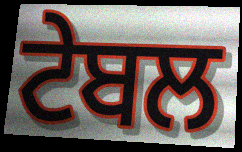
ਟੇਬਲ